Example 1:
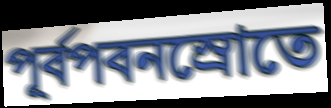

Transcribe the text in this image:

পূর্বপবনস্রোতে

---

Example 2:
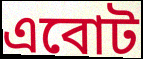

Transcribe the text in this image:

এবোট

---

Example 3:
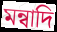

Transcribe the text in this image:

মন্বাদি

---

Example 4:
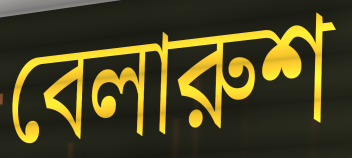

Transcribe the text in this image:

বেলারুশ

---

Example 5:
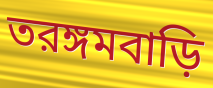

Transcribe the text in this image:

তরঙ্গমবাড়ি